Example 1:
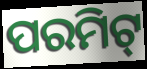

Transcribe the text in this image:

ପରମିଟ୍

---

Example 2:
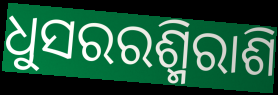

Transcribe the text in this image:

ଧୁସରରଶ୍ମିରାଶି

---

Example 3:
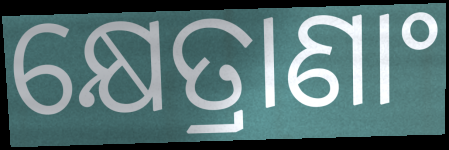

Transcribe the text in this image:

କ୍ଷେତ୍ରାଣାଂ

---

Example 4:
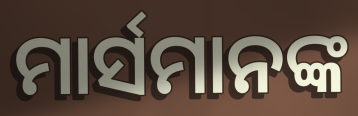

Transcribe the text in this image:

ମାର୍ସମାନଙ୍କ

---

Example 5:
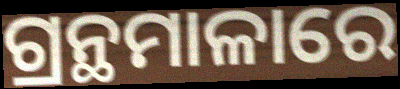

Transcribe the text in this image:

ଗ୍ରନ୍ଥମାଳାରେ